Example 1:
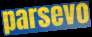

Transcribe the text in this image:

parsevo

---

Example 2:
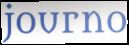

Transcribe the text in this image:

journo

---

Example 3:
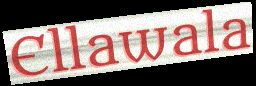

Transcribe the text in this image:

Ellawala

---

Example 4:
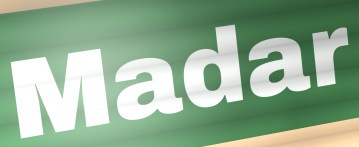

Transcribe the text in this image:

Madar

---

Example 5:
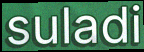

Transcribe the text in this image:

suladi